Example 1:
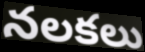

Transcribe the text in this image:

నలకలు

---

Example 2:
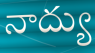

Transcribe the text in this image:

నాద్యు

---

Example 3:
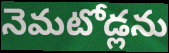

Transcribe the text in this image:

నెమటోడ్లను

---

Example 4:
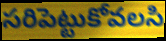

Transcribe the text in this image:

సరిపెట్టుకోవలసి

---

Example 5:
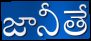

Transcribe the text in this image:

జానీతే